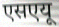
एसएयू